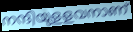
നന്ദിയുളളവനാണ്